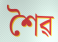
শৈৱ